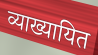
व्याख्यायित